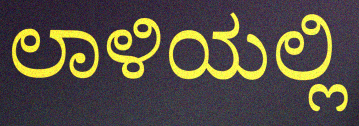
ಲಾಳಿಯಲ್ಲಿ